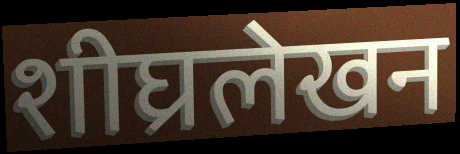
शीघ्रलेखन